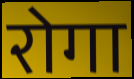
रोगा